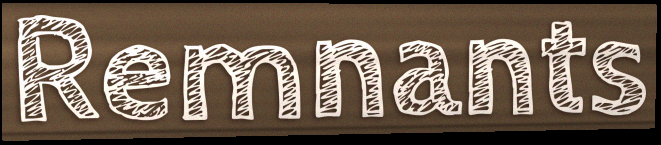
Remnants